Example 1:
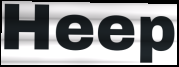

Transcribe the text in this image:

Heep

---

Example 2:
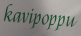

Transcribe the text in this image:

kavipoppu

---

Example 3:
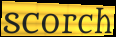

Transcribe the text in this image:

scorch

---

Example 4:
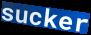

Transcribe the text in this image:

sucker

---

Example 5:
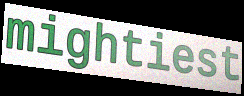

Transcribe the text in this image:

mightiest